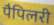
पैपिलरी